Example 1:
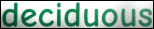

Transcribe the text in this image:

deciduous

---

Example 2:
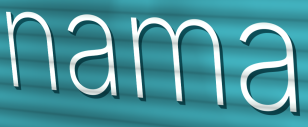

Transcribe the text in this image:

nama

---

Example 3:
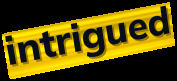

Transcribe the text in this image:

intrigued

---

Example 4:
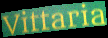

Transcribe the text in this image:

Vittaria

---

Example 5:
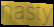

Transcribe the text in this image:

nasty